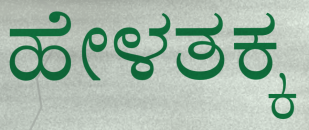
ಹೇಳತಕ್ಕ